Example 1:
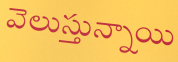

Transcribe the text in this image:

వెలుస్తున్నాయి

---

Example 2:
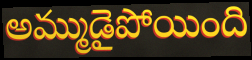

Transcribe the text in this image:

అమ్ముడైపోయింది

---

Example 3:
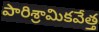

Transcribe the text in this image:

పారిశ్రామికవేత్త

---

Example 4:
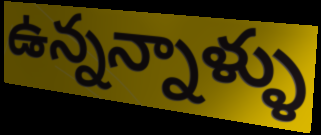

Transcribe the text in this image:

ఉన్నన్నాళ్ళు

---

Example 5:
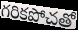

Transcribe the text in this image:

గరికపోచతో